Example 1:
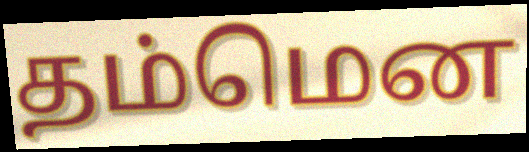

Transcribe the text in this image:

தம்மென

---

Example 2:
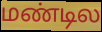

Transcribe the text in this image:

மண்டில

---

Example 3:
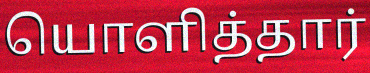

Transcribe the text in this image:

யொளித்தார்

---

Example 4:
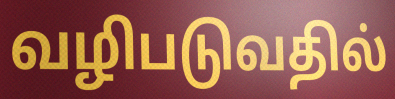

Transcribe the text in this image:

வழிபடுவதில்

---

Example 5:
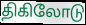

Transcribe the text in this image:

திகிலோடு